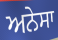
ਅਨੇਸਾ